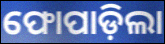
ଫୋପାଡ଼ିଲା